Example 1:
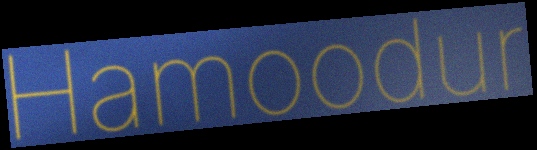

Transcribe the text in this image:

Hamoodur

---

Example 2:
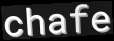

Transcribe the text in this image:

chafe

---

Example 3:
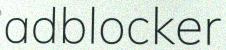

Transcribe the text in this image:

adblocker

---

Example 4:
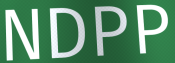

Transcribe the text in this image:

NDPP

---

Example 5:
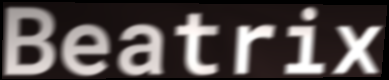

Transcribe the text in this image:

Beatrix